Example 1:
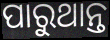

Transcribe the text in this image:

ପାରୁଥାନ୍ତ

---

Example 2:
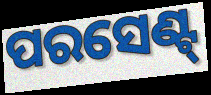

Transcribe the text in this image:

ପରସେଣ୍ଟ୍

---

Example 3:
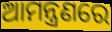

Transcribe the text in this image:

ଆମନ୍ତ୍ରଣରେ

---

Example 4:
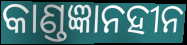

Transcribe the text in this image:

କାଣ୍ଡଜ୍ଞାନହୀନ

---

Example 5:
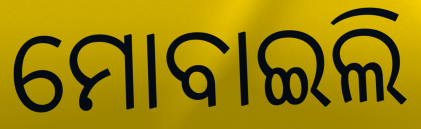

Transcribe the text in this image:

ମୋବାଇଲି